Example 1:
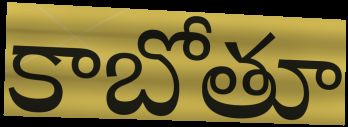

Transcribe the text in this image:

కాబోతూ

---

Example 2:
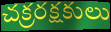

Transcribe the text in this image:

చక్రరక్షకులు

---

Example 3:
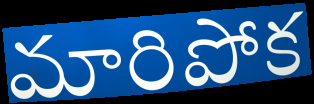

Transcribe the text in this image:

మారిపోక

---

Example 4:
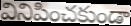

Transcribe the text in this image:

వినిపించకుండా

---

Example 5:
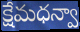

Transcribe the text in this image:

క్షేమధన్వా